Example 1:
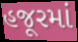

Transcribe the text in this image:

હજૂરમાં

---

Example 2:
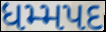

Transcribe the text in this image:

ધમ્મપદ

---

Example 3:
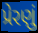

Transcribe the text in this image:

પ્રેરણું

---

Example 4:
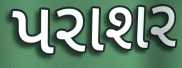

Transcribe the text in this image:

પરાશર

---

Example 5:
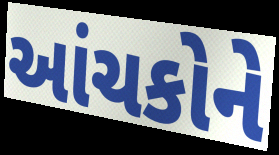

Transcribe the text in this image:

આંચકોને